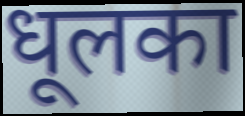
धूलका